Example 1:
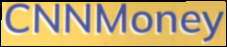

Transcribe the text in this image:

CNNMoney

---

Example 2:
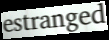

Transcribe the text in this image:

estranged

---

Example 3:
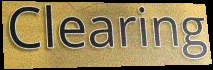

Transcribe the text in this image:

Clearing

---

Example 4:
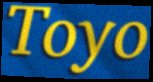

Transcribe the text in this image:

Toyo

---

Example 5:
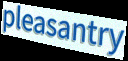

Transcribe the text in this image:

pleasantry